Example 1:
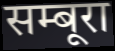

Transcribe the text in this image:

सम्बूरा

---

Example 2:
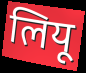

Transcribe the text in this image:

लियू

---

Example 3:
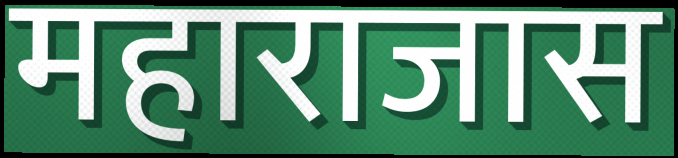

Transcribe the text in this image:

महाराजास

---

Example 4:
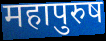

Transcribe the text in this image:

महापुरुष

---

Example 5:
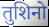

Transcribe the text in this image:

तुशिनो